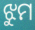
ଝୁମ